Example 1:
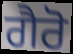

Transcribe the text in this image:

ਗੈਰੋ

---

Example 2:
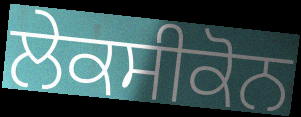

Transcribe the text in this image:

ਲੇਕਸੀਕੋਨ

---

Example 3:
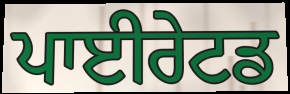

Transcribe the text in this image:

ਪਾਈਰੇਟਡ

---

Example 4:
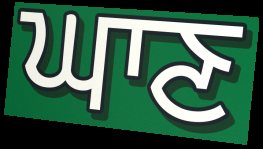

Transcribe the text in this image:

ਘਾਣ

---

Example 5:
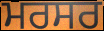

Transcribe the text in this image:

ਮਰਸਰ